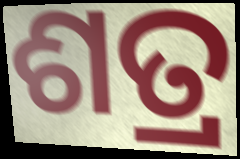
ଶତ୍ର